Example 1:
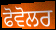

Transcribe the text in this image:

ਫੋਵੋਲਰ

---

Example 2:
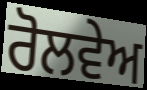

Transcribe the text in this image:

ਰੋਲਵੇਅ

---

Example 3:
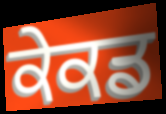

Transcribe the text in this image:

ਕੇਕਡ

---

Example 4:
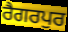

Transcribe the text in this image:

ਰੈਗਰਪੁਰ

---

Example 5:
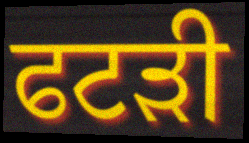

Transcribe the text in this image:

ਫਟੜੀ